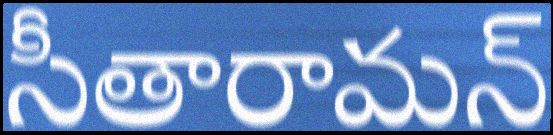
సీతారామన్